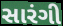
સારંગી